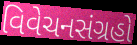
વિવેચનસંગ્રહો